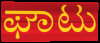
ಘಾಟು